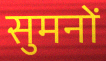
सुमनों